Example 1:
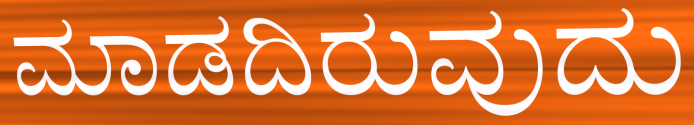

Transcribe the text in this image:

ಮಾಡದಿರುವುದು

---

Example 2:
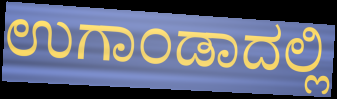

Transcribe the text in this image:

ಉಗಾಂಡಾದಲ್ಲಿ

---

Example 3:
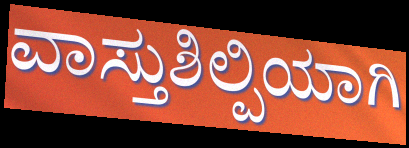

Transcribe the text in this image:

ವಾಸ್ತುಶಿಲ್ಪಿಯಾಗಿ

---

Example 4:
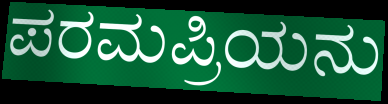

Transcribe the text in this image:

ಪರಮಪ್ರಿಯನು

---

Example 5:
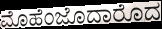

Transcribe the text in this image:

ಮೊಹೆಂಜೊದಾರೊದ